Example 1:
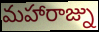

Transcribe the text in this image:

మహారాజ్ను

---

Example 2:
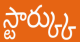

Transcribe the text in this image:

స్టార్క్కు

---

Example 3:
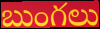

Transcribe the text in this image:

బుంగలు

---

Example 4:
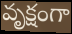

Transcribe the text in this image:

వృక్షంగా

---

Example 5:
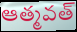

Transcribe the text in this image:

ఆత్మవత్